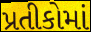
પ્રતીકોમાં